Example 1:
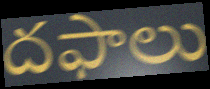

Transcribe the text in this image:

దఫాలు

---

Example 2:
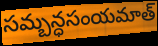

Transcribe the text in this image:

సమ్బన్ధసంయమాత్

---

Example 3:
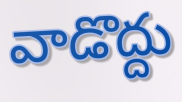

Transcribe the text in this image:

వాడొద్దు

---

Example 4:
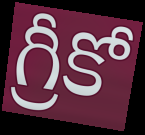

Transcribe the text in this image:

గ్రీకో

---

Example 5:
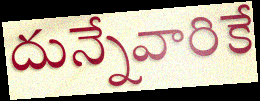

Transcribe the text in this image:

దున్నేవారికే